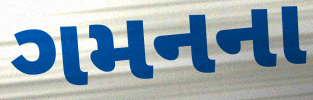
ગમનના